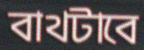
বাথটাবে